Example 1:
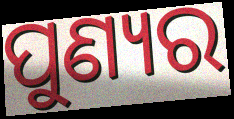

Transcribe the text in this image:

ପୁଣ୍ୟର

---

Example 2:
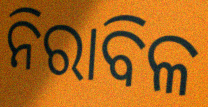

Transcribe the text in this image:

ନିରାବିଳ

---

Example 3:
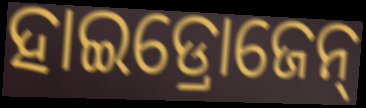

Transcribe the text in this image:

ହାଇଡ୍ରୋଜେନ୍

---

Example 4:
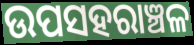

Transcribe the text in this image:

ଉପସହରାଞ୍ଚଳ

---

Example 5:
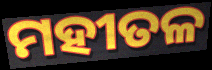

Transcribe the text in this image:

ମହୀତଳ